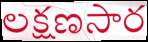
లక్షణసార